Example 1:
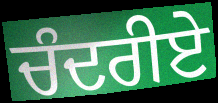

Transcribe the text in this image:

ਚੰਦਰੀਏ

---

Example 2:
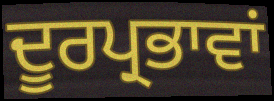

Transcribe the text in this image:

ਦੂਰਪ੍ਰਭਾਵਾਂ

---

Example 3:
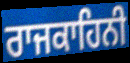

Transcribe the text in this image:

ਰਾਜਕਾਹਿਨੀ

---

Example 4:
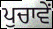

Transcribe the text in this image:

ਪੁਚਾਵੇਂ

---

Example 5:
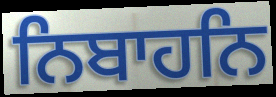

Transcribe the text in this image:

ਨਿਬਾਹਨਿ